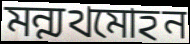
মন্মথমোহন